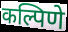
कल्पिणे